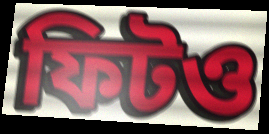
ফিটও